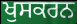
ਖੁਸਕਰਨ